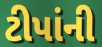
ટીપાંની